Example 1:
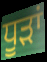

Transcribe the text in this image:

ਧੂੜਾਂ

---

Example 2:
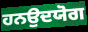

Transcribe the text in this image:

ਹਨਉਦਯੋਗ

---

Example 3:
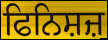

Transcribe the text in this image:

ਫਿਨਿਸ਼ਜ਼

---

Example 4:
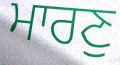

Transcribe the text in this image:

ਮਾਰਣੁ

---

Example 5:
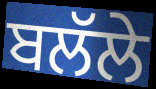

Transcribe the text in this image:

ਬਲੱਲੇ